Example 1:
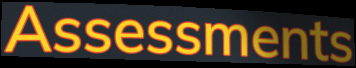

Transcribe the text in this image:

Assessments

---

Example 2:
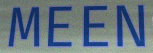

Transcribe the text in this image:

MEEN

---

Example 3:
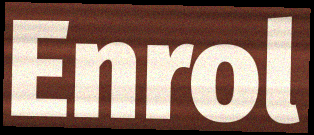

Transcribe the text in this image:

Enrol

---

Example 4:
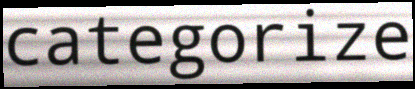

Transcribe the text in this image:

categorize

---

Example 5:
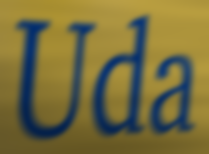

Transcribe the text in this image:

Uda